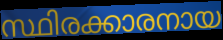
സ്ഥിരക്കാരനായ